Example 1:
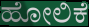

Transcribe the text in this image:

ಹೋಲಿಕೆ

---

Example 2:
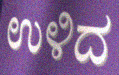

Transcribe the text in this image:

ಉಳಿದ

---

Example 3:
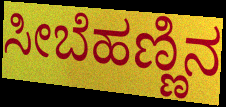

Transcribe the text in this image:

ಸೀಬೆಹಣ್ಣಿನ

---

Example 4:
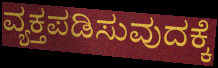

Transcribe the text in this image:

ವ್ಯಕ್ತಪಡಿಸುವುದಕ್ಕೆ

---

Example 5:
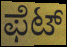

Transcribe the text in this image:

ಫೆಟ್